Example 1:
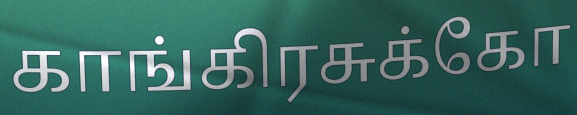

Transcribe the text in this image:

காங்கிரசுக்கோ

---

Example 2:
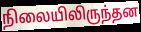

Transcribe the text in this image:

நிலையிலிருந்தன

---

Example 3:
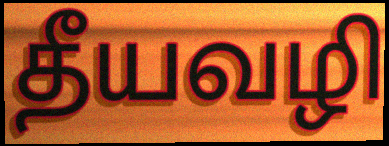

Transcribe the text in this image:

தீயவழி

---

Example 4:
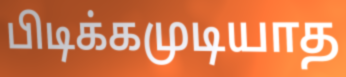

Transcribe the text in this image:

பிடிக்கமுடியாத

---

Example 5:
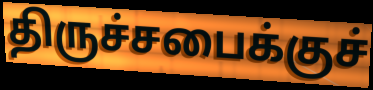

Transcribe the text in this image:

திருச்சபைக்குச்